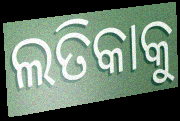
ଲତିକାକୁ